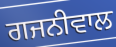
ਗਜਨੀਵਾਲ